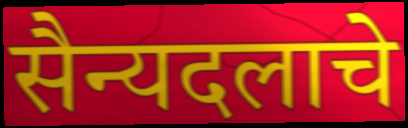
सैन्यदलाचे